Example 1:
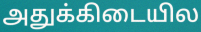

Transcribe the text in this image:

அதுக்கிடையில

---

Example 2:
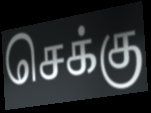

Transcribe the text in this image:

செக்கு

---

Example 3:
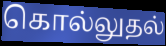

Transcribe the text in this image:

கொல்லுதல்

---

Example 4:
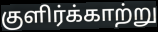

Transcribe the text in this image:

குளிர்க்காற்று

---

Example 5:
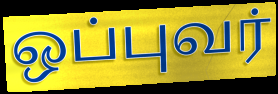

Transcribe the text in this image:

ஒப்புவர்